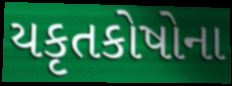
યકૃતકોષોના